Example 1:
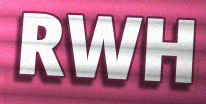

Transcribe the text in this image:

RWH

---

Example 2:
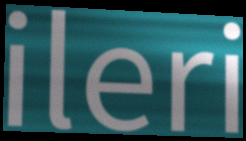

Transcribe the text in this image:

ileri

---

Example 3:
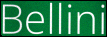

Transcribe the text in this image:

Bellini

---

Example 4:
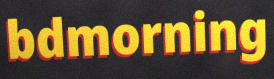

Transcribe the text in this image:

bdmorning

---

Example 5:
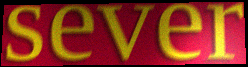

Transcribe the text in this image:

sever